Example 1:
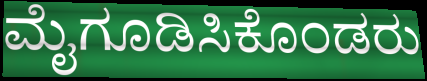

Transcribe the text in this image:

ಮೈಗೂಡಿಸಿಕೊಂಡರು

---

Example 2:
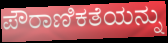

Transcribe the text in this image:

ಪೌರಾಣಿಕತೆಯನ್ನು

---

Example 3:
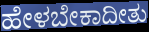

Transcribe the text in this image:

ಹೇಳಬೇಕಾದೀತು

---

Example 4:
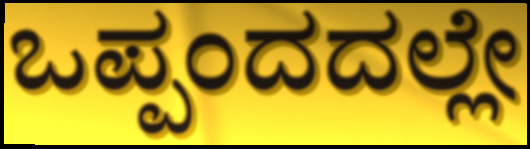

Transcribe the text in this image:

ಒಪ್ಪಂದದಲ್ಲೇ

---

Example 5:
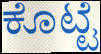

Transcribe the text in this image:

ಕೊಟ್ಟೆ